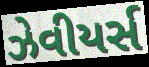
ઝેવીયર્સ